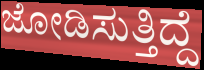
ಜೋಡಿಸುತ್ತಿದ್ದೆ